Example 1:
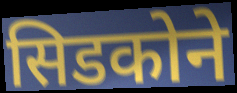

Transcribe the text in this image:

सिडकोने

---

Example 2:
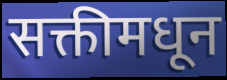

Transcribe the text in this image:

सक्तीमधून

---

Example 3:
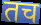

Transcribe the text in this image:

तच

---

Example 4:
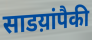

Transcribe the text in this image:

साडय़ांपैकी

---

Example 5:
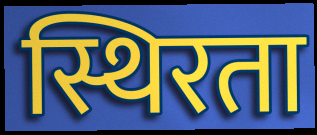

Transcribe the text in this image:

स्थिरता